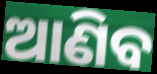
ଆଣିବ